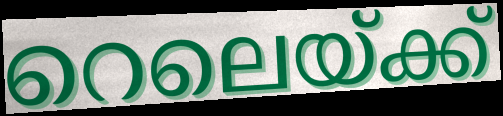
റെലെയ്ക്ക്